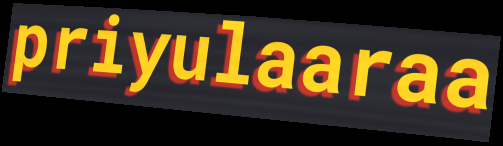
priyulaaraa